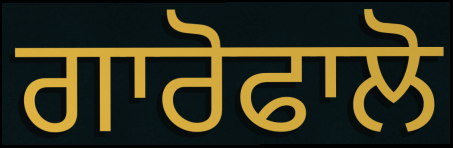
ਗਾਰੋਫਾਲੋ